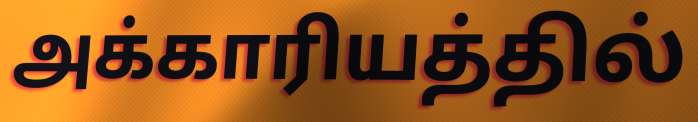
அக்காரியத்தில்